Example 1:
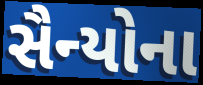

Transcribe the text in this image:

સૈન્યોના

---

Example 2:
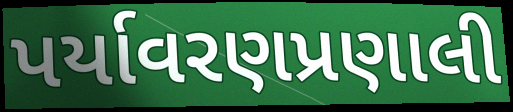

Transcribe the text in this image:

પર્યાવરણપ્રણાલી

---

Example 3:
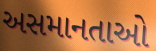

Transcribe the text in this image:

અસમાનતાઓ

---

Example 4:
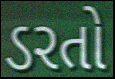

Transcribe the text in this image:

ડરતો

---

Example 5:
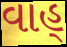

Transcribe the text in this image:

વાહ્